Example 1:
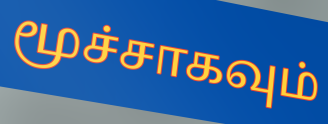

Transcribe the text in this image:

மூச்சாகவும்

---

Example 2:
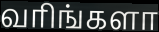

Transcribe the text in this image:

வரிங்களா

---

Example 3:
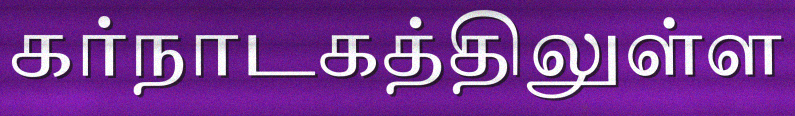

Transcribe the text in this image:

கர்நாடகத்திலுள்ள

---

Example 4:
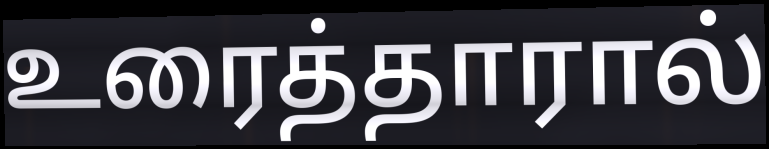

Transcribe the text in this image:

உரைத்தாரால்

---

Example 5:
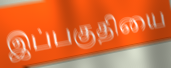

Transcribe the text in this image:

இப்பகுதியை